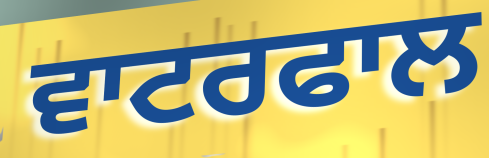
ਵਾਟਰਫਾਲ